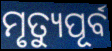
ମୃତ୍ୟୁପୂର୍ବ